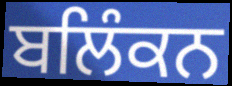
ਬਲਿੰਕਨ